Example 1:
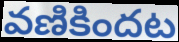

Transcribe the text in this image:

వణికిందట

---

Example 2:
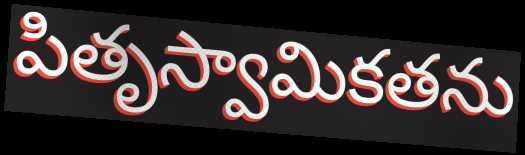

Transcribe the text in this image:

పితృస్వామికతను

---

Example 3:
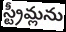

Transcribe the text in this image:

స్ట్రీమ్లను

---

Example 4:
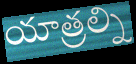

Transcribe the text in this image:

యాత్రల్ని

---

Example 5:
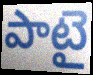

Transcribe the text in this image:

పాటై